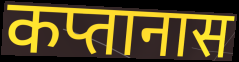
कप्तानास